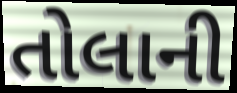
તોલાની